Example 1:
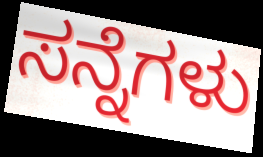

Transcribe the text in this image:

ಸನ್ನೆಗಳು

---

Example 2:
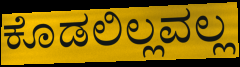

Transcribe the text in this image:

ಕೊಡಲಿಲ್ಲವಲ್ಲ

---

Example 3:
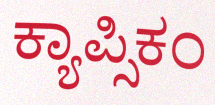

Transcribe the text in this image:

ಕ್ಯಾಪ್ಸಿಕಂ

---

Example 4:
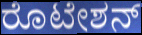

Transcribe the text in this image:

ರೊಟೇಶನ್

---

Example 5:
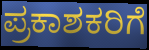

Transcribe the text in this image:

ಪ್ರಕಾಶಕರಿಗೆ